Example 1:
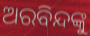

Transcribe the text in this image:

ଅରବିନ୍ଦଙ୍କୁ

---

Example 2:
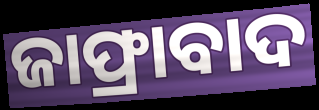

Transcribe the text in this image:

ଜାଫ୍ରାବାଦ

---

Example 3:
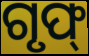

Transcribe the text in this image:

ଗୃଫ୍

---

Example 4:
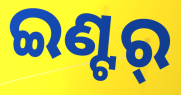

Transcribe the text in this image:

ଇଣ୍ଟର୍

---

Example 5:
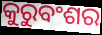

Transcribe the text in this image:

କୁରୁବଂଶର